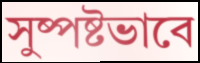
সুষ্পষ্টভাবে